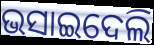
ଭସାଇଦେଲି